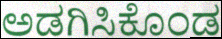
ಅಡಗಿಸಿಕೊಂಡ